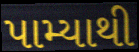
પામ્યાથી